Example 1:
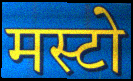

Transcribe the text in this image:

मस्टो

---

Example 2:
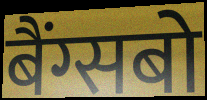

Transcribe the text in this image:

बैंग्सबो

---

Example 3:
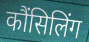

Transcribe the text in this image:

कौंसिलिंग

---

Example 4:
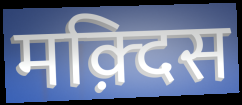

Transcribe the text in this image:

मक़्दिस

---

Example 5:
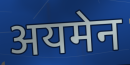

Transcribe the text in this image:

अयमेन